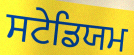
ਸਟੇਡਿਯਮ